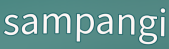
sampangi